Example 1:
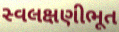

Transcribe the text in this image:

સ્વલક્ષણીભૂત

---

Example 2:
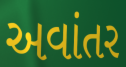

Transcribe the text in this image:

અવાંતર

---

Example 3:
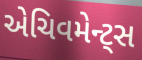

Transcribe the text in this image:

એચિવમેન્ટ્સ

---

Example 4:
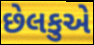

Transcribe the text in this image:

છેલકુએ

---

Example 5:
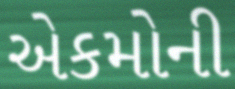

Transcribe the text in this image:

એકમોની